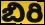
బిరి